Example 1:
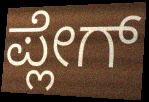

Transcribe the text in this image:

ಪ್ಲೇಗ್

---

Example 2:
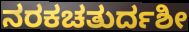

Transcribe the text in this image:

ನರಕಚತುರ್ದಶೀ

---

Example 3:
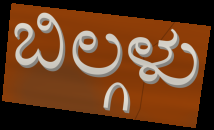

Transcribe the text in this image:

ಬಿಲ್ಗಳು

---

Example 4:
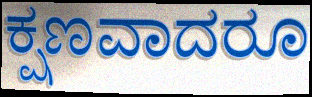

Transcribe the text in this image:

ಕ್ಷಣವಾದರೂ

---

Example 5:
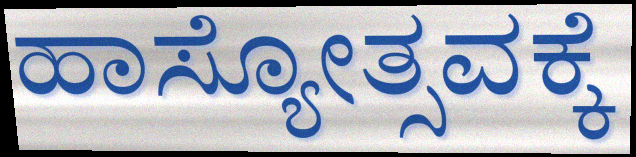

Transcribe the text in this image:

ಹಾಸ್ಯೋತ್ಸವಕ್ಕೆ